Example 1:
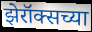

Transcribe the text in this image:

झेरॉक्सच्या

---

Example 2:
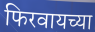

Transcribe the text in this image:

फिरवायच्या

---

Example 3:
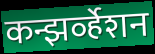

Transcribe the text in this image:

कन्झर्व्हेशन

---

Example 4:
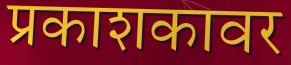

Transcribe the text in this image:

प्रकाशकावर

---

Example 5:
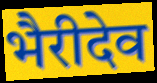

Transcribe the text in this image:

भैरीदेव